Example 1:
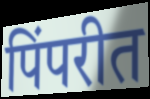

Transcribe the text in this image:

पिंपरीत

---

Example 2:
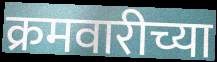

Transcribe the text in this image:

क्रमवारीच्या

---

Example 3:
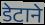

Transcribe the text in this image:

डेटाने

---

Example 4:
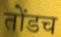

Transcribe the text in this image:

तोंडच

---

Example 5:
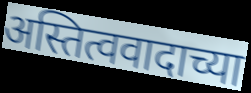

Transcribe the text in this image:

अस्तित्ववादाच्या